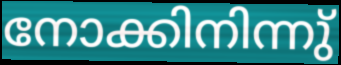
നോക്കിനിന്നു്